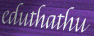
eduthathu